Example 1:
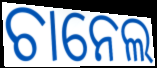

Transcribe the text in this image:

ଚାନେଲ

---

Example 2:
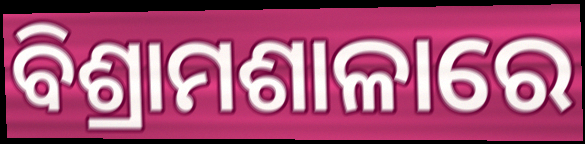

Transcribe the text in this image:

ବିଶ୍ରାମଶାଳାରେ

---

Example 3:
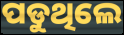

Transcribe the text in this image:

ପଡୁଥିଲେ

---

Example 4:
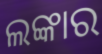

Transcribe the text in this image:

ଲଙ୍କାର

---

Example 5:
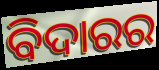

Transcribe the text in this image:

ବିଦାରର